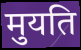
मुयति